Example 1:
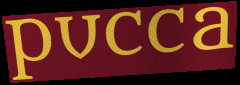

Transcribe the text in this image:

pucca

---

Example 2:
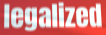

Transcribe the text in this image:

legalized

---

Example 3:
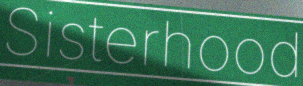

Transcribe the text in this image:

Sisterhood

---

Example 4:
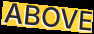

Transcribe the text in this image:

ABOVE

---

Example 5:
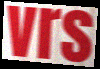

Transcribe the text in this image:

vrs